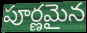
పూర్ణమైన